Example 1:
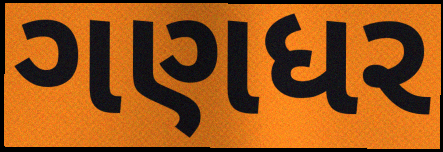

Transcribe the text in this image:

ગણધર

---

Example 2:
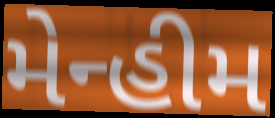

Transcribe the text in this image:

મેન્હીમ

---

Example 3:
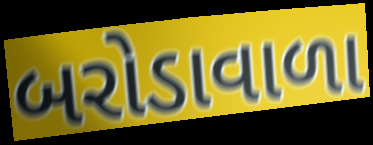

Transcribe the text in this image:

બરોડાવાળા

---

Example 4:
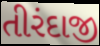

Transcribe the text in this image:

તીરંદાજી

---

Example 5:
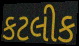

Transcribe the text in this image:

કટલીક